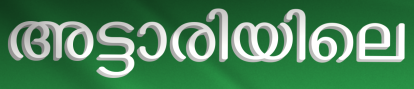
അട്ടാരിയിലെ